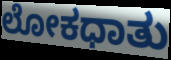
ಲೋಕಧಾತು